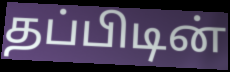
தப்பிடின்